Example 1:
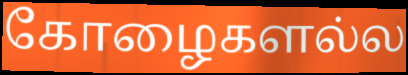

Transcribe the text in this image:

கோழைகளல்ல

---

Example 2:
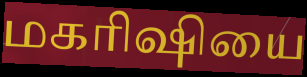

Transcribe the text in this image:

மகரிஷியை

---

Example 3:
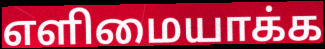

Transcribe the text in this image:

எளிமையாக்க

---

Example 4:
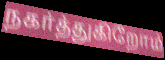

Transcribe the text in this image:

நகர்த்துகிறோம்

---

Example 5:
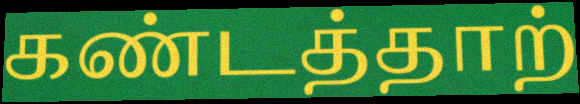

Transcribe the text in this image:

கண்டத்தாற்